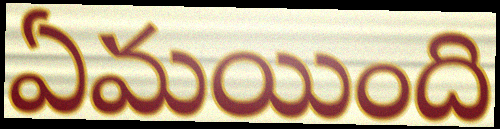
ఏమయింది